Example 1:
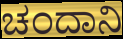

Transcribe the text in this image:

ಚಂದಾನಿ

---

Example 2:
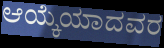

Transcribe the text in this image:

ಆಯ್ಕೆಯಾದವರ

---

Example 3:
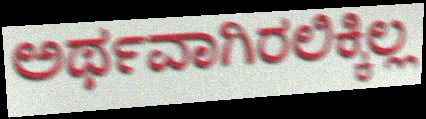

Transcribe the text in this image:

ಅರ್ಥವಾಗಿರಲಿಕ್ಕಿಲ್ಲ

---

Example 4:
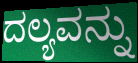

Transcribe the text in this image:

ದಲ್ಯವನ್ನು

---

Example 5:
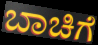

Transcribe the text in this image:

ಬಾಚಿಗೆ